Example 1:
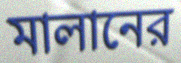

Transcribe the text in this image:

মালানের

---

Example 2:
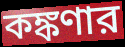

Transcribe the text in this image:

কঙ্কণার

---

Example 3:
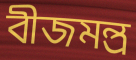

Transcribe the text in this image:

বীজমন্ত্র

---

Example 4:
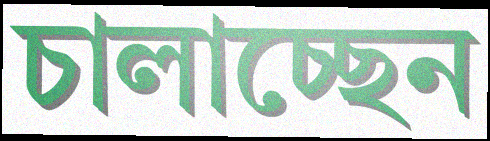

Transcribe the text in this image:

চালাচ্ছেন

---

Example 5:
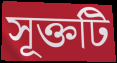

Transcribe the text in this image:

সূক্তটি